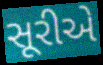
સૂરીએ